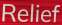
Relief